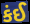
કંઈ